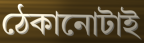
ঠেকানোটাই